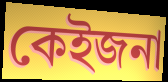
কেইজনা